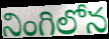
నింగిలోన